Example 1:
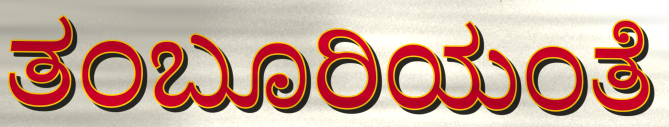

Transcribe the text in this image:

ತಂಬೂರಿಯಂತೆ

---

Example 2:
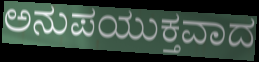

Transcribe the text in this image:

ಅನುಪಯುಕ್ತವಾದ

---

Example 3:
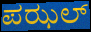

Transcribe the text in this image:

ಪಝಲ್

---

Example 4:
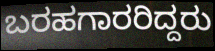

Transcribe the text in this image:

ಬರಹಗಾರರಿದ್ದರು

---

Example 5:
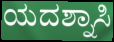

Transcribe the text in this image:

ಯದಶ್ನಾಸಿ